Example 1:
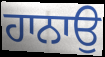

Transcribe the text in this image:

ਹਾਨਾਉ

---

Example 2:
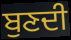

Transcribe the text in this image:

ਬੁਣਦੀ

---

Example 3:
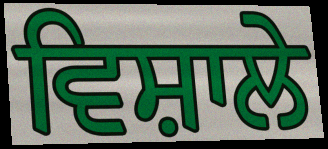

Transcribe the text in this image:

ਵਿਸ਼ਾਲੇ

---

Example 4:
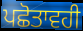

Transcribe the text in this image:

ਪਛੋਤਾਵਹੀ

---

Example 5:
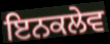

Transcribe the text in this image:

ਇਨਕਲੇਵ